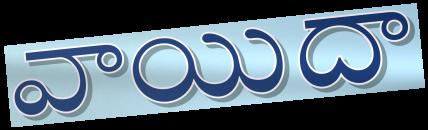
వాయిదా